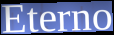
Eterno